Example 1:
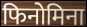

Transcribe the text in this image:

फिनोमिना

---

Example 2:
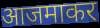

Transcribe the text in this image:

आजमाकर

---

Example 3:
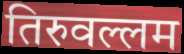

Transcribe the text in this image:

तिरुवल्लम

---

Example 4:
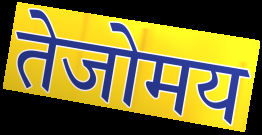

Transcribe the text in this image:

तेजोमय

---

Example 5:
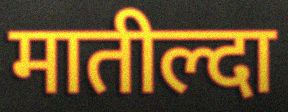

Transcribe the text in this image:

मातील्‍दा